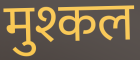
मुश्कल